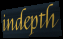
indepth